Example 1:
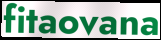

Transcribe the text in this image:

fitaovana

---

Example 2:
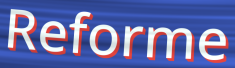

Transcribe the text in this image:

Reforme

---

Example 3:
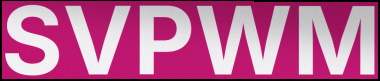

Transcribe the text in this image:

SVPWM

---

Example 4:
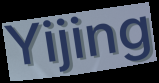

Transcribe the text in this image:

Yijing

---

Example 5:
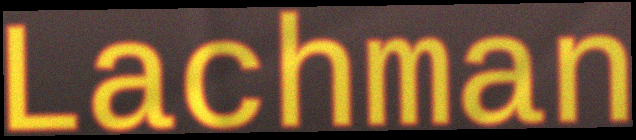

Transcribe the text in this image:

Lachman